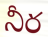
నీర